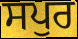
ਸਪੁਰ